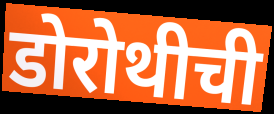
डोरोथीची